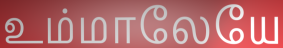
உம்மாலேயே